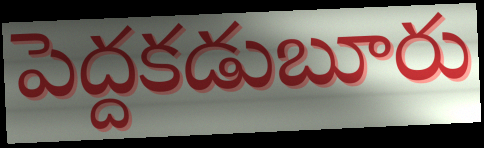
పెద్దకడుబూరు